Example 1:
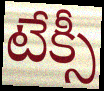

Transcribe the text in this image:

టేక్సీ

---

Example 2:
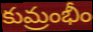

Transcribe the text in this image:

కుమ్రంభీం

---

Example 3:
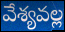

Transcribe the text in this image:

వేశ్యవల్ల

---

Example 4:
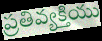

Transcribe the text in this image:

ప్రతివ్యక్తియు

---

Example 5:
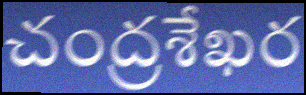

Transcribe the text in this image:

చంద్రశేఖర